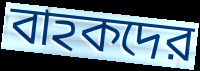
বাহকদের